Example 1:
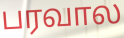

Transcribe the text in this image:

பரவால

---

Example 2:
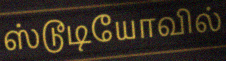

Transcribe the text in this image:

ஸ்டூடியோவில்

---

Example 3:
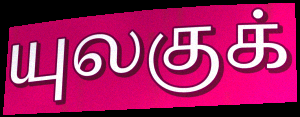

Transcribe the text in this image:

யுலகுக்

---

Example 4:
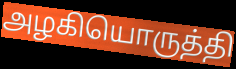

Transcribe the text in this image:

அழகியொருத்தி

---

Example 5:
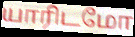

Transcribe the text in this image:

யாரிடமோ